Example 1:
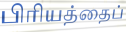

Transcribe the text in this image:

பிரியத்தைப்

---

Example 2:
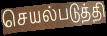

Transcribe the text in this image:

செயல்படுத்தி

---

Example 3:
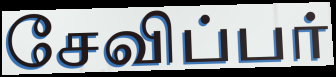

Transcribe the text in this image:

சேவிப்பர்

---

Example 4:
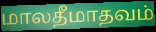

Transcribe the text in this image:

மாலதீமாதவம்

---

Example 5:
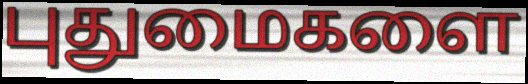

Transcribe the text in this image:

புதுமைகளை